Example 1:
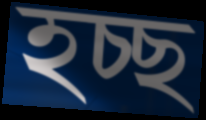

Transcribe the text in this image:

হচ্ছ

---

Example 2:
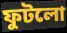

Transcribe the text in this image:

ফুটলো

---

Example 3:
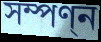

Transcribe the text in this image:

সম্পণ্ন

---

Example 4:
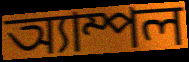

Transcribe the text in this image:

অ্যাম্পল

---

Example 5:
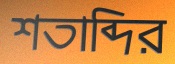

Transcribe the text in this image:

শতাব্দির